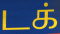
டக்